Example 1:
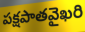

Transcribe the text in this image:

పక్షపాతవైఖరి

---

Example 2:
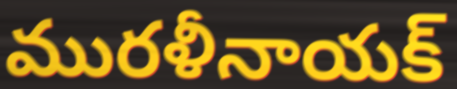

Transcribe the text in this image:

మురళీనాయక్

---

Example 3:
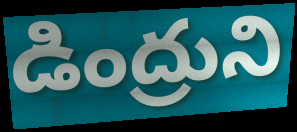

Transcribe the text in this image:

డింద్రుని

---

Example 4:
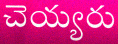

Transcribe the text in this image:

చెయ్యరు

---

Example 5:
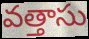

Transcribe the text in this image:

వత్తాసు